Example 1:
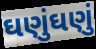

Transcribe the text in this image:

ઘણુંઘણું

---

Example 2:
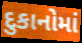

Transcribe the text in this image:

દુકાનોમાં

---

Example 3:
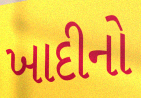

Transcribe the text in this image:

ખાદીનો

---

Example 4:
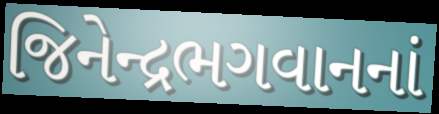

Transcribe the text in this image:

જિનેન્દ્રભગવાનનાં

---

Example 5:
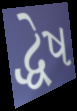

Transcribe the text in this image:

દ્ધેષ